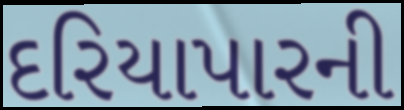
દરિયાપારની